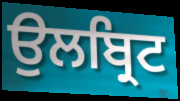
ਉਲਬ੍ਰਿਟ